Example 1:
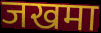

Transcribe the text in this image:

जखमा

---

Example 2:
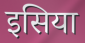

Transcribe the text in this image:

इसिया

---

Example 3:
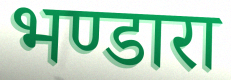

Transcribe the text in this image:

भण्डारा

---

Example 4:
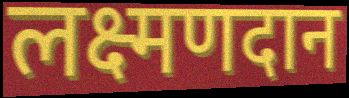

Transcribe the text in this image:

लक्ष्मणदान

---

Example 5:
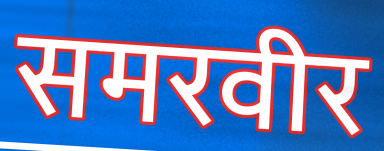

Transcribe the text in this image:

समरवीर